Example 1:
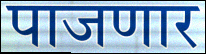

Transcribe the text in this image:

पाजणार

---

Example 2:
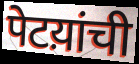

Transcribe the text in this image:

पेटय़ांची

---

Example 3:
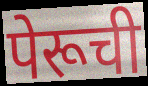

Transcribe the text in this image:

पेरूची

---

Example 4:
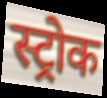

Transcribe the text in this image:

स्ट्रोक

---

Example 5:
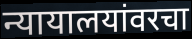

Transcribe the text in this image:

न्यायालयांवरचा